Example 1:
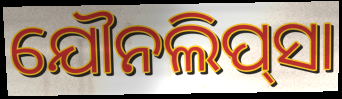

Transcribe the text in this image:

ଯୌନଲିପ୍‌ସା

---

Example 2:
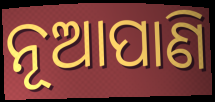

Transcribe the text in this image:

ନୂଆପାଣି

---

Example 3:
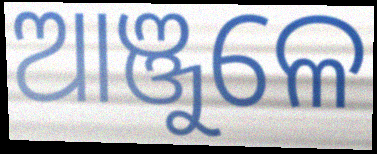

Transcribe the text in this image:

ଆଞ୍ଜୁଳେ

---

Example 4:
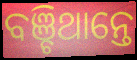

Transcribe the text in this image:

ବଞ୍ଚିଥାନ୍ତେ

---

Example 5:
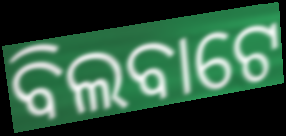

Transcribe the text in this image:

ବିଲବାଟେ